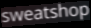
sweatshop